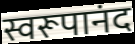
स्‍वरूपानंद